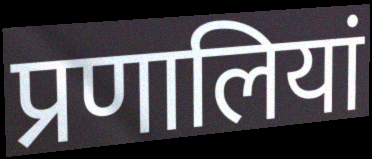
प्रणालियां